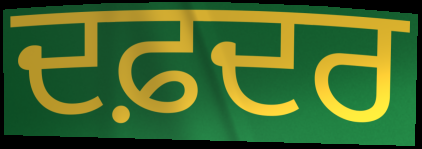
ਦਫ਼ਦਰ